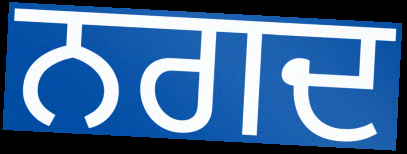
ਨਗਦ